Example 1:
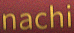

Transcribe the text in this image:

nachi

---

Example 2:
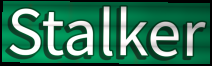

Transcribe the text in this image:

Stalker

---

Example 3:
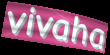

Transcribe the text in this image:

vivaha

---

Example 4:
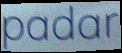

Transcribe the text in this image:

padar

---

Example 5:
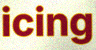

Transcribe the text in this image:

icing